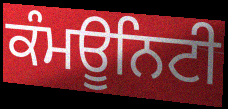
ਕੰਮਊਨਿਟੀ